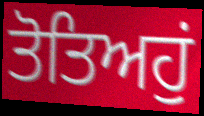
ਤੋਤਿਅਹੁਂ